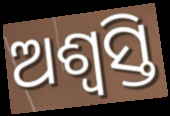
ଅଶ୍ୱସ୍ତି